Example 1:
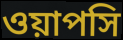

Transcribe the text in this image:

ওয়াপসি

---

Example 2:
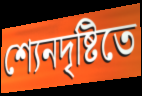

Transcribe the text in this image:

শ্যেনদৃষ্টিতে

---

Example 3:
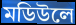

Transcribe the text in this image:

মডিউলে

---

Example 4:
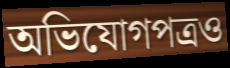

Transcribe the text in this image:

অভিযোগপত্রও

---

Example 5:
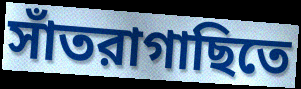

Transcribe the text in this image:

সাঁতরাগাছিতে